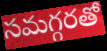
సమగ్గరతో